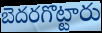
బెదరగొట్టారు